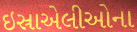
ઇસ્રાએલીઓના